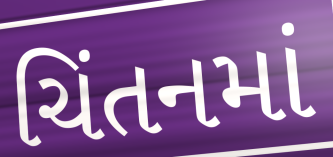
ચિંતનમાં